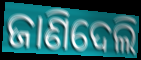
ଜାଣିଦେଲି